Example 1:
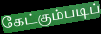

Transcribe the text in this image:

கேட்கும்படிப்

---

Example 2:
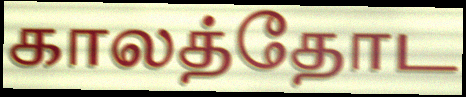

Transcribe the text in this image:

காலத்தோட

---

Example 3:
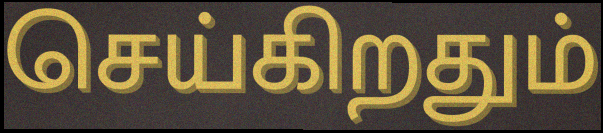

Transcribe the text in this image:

செய்கிறதும்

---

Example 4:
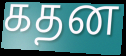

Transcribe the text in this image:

கதன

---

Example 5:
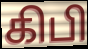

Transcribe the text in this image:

கிபி